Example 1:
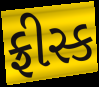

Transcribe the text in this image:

ફ્રીસ્ક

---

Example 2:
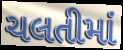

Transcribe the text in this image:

ચલતીમાં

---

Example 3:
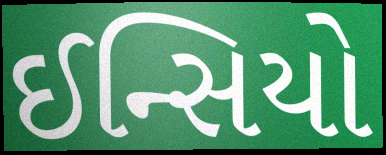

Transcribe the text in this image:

ઈન્સિયો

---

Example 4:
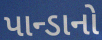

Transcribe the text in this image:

પાન્ડાનો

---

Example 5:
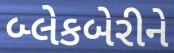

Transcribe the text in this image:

બ્લેકબેરીને